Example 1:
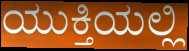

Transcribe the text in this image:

ಯುಕ್ತಿಯಲ್ಲಿ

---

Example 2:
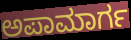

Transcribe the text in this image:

ಅಪಾಮಾರ್ಗ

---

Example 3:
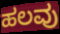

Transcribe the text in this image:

ಹಲವು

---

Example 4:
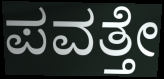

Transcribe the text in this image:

ಪವತ್ತೇ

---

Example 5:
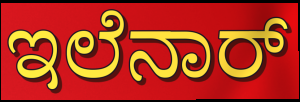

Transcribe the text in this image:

ಇಲೆನಾರ್